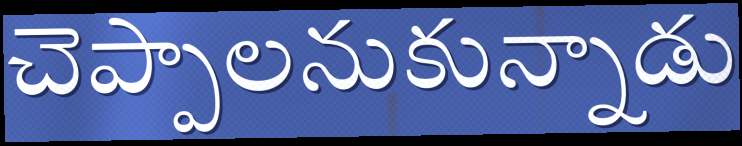
చెప్పాలనుకున్నాడు